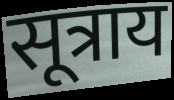
सूत्राय